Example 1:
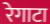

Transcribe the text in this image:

रेगाटा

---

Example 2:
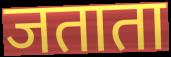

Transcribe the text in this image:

जताता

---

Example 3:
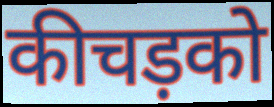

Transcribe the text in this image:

कीचड़को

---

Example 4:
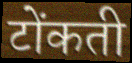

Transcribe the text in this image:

टोंकती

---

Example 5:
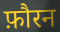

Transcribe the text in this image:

फ़ौरन